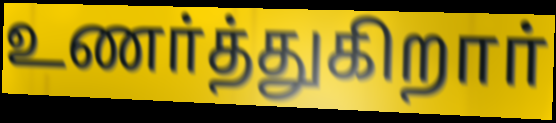
உணர்த்துகிறார்